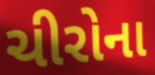
ચીરોના